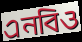
এনবিও